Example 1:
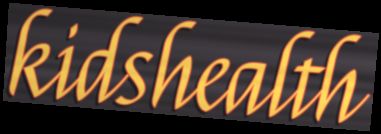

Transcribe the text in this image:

kidshealth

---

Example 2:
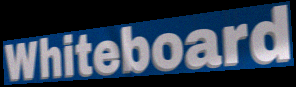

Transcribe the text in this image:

Whiteboard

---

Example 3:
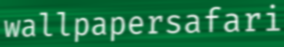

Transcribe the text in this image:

wallpapersafari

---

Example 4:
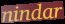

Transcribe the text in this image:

nindar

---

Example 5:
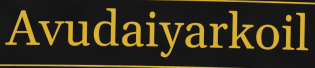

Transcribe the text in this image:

Avudaiyarkoil